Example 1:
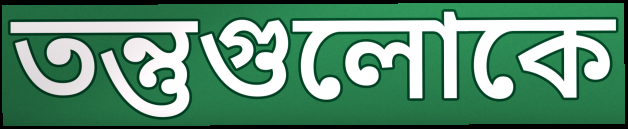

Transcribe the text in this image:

তন্তুগুলোকে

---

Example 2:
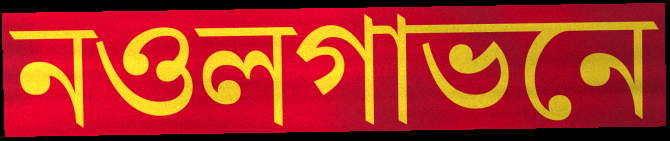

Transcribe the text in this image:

নওলগাভনে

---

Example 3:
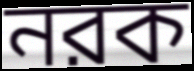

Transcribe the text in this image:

নরক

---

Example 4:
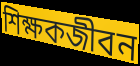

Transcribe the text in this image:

শিক্ষকজীবন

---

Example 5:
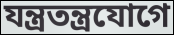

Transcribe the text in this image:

যন্ত্রতন্ত্রযোগে